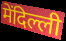
मेंदिल्ली